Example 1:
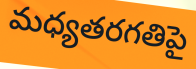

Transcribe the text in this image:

మధ్యతరగతిపై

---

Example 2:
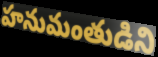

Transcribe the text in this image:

హనుమంతుడిని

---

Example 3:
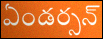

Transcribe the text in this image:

ఏండర్సన్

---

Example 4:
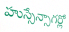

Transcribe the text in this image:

హుస్సేన్సాగర్లో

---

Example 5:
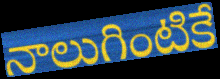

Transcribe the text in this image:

నాలుగింటికే